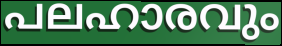
പലഹാരവും